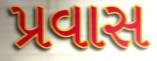
પ્રવાસ